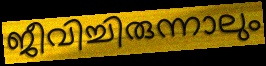
ജീവിച്ചിരുന്നാലും